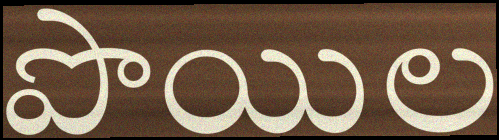
పొయిల